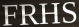
FRHS